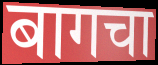
बागचा